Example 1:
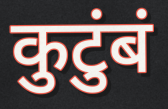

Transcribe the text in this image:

कुटुंबं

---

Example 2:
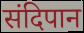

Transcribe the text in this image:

संदिपान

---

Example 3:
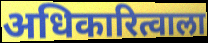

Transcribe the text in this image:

अधिकारित्वाला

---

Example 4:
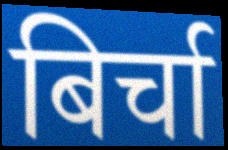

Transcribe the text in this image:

बिर्चा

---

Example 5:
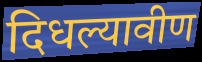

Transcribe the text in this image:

दिधल्यावीण